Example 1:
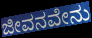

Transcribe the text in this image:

ಜೀವನವೇನು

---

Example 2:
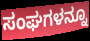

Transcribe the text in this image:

ಸಂಘಗಳನ್ನೂ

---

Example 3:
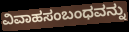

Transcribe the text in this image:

ವಿವಾಹಸಂಬಂಧವನ್ನು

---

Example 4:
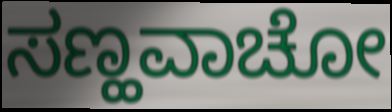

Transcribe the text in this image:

ಸಣ್ಹವಾಚೋ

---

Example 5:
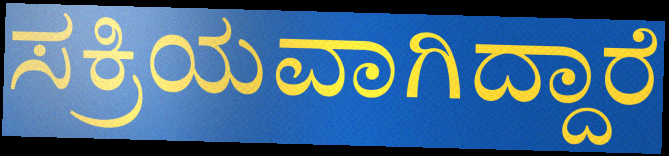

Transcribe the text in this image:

ಸಕ್ರಿಯವಾಗಿದ್ದಾರೆ